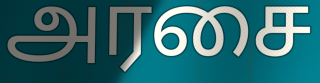
அரசை